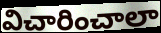
విచారించాలా